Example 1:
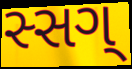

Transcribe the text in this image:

સ્સગ્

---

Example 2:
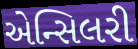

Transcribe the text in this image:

એન્સિલરી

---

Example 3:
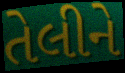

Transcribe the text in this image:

તેલીને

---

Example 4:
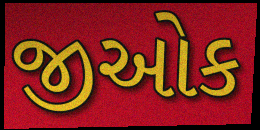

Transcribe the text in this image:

જીઓક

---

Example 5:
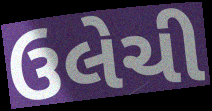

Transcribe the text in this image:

ઉલેચી